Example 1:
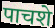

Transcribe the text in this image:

पाचशे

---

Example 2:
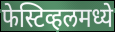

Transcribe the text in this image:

फेस्टिव्हलमध्ये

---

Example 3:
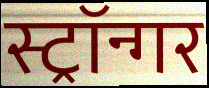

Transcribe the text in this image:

स्ट्रॉन्गर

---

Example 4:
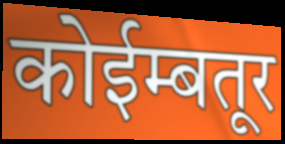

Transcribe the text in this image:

कोईम्बतूर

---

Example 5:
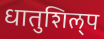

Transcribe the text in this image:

धातुशिल्प